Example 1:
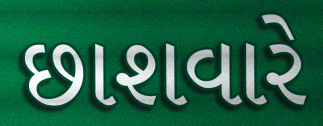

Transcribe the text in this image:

છાશવારે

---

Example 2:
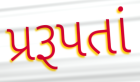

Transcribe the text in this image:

પ્રરૂપતાં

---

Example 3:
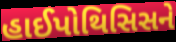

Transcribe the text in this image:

હાઈપોથિસિસને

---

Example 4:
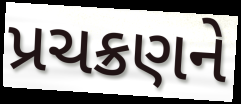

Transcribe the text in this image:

પ્રચક્રણને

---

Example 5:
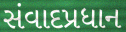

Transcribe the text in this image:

સંવાદપ્રધાન